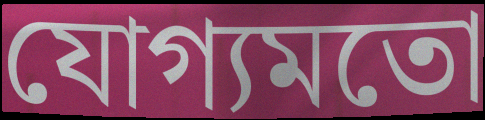
যোগ্যমতো